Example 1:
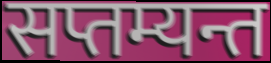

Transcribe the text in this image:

सप्तम्यन्त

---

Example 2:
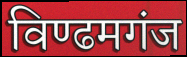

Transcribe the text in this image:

विण्ढमगंज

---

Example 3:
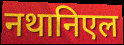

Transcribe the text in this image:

नथानिएल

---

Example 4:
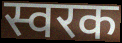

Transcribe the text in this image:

स्वरक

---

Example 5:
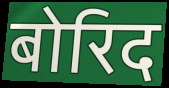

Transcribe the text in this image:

बोरिद